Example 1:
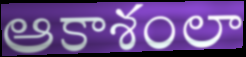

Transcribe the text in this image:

ఆకాశంలా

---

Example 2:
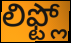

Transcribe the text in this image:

లిఫ్ట్లో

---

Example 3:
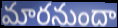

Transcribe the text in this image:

మారనుందా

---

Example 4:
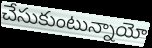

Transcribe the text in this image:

చేసుకుంటున్నాయో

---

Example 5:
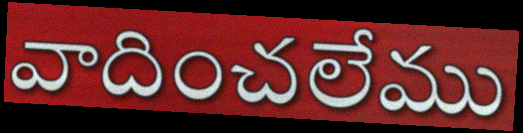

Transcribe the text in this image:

వాదించలేము